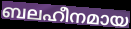
ബലഹീനമായ